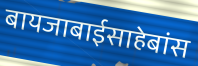
बायजाबाईसाहेबांस